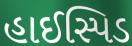
હાઈસ્પિડ